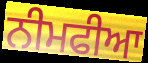
ਨੀਮਫੀਆ